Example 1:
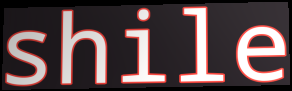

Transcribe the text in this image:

shile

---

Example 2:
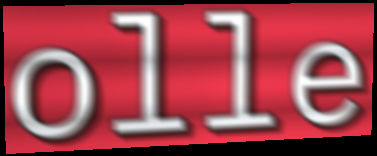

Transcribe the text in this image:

olle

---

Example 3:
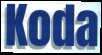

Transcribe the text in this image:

Koda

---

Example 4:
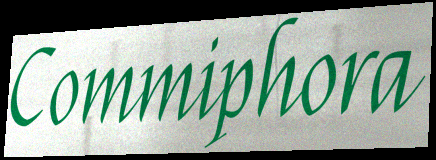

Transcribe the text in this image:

Commiphora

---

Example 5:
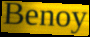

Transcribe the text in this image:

Benoy